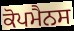
ਕੋਪਮੈਨਸ